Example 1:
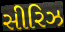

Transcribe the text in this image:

સીરિઝ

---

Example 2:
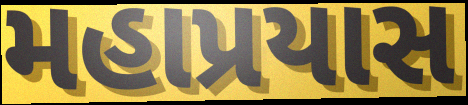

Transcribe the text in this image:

મહાપ્રયાસ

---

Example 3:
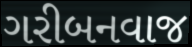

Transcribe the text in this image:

ગરીબનવાજ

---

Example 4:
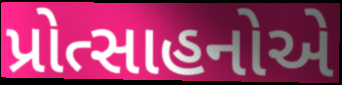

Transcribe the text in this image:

પ્રોત્સાહનોએ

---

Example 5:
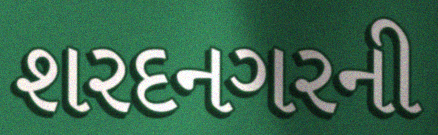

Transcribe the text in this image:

શરદનગરની